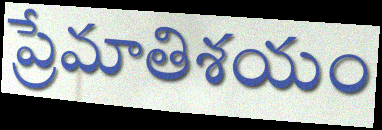
ప్రేమాతిశయం